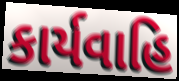
કાર્યવાહિ